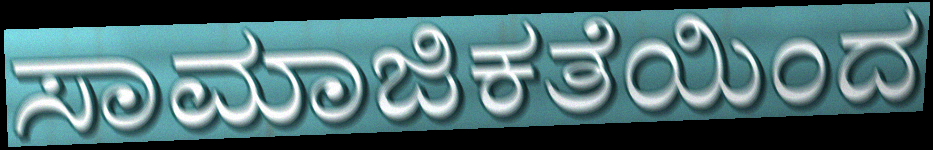
ಸಾಮಾಜಿಕತೆಯಿಂದ